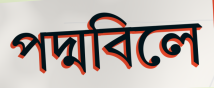
পদ্মবিলে